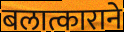
बलात्काराने